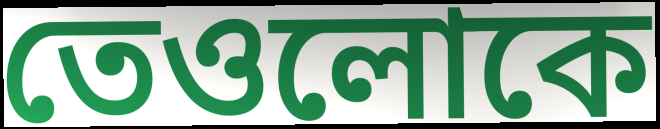
তেওলোকে